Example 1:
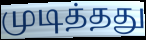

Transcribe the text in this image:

முடித்தது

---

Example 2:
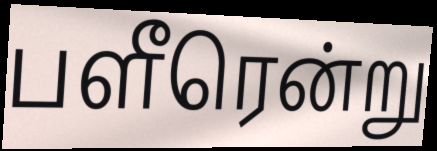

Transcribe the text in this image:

பளீரென்று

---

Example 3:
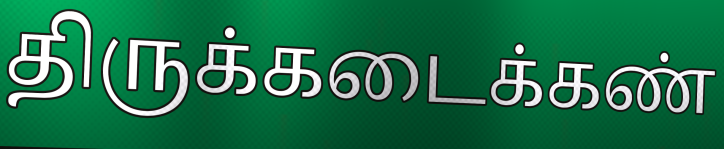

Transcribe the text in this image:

திருக்கடைக்கண்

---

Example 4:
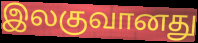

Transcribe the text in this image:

இலகுவானது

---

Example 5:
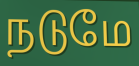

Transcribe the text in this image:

நடுமே